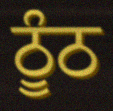
ਠੂੰਠ